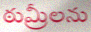
ఠుమ్రీలను